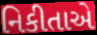
નિકીતાએ